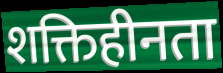
शक्तिहीनता